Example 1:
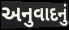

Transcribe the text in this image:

અનુવાદનું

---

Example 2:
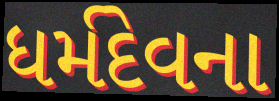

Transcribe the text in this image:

ધર્મદેવના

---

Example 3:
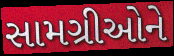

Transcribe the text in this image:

સામગ્રીઓને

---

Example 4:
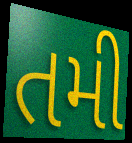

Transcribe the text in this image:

તમી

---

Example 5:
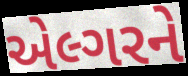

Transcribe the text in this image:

એલ્ગરને